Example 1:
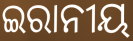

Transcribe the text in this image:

ଇରାନୀୟ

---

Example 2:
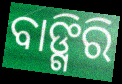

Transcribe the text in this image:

ବାଙ୍ଗିରି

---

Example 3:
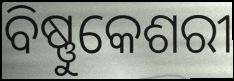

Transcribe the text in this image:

ବିଷ୍ଣୁକେଶରୀ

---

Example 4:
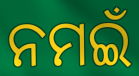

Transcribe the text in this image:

ନମଇଁ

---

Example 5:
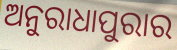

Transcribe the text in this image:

ଅନୁରାଧାପୁରାର